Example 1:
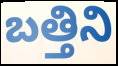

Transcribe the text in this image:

బత్తిని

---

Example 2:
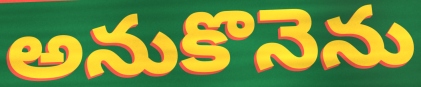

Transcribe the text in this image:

అనుకొనెను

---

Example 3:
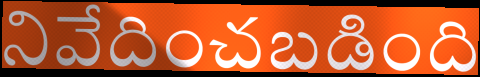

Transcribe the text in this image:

నివేదించబడింది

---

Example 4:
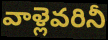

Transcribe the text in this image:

వాళ్లెవరినీ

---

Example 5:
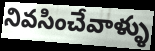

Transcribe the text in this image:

నివసించేవాళ్ళు